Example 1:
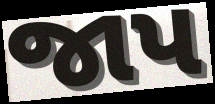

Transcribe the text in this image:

જાપ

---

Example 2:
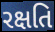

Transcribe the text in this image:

રક્ષતિ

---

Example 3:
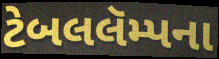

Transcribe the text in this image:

ટેબલલૅમ્પના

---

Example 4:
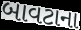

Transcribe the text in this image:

બાવટાના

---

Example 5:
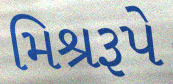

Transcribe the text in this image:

મિશ્રરૂપે